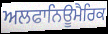
ਅਲਫਾਨਿਊਮੈਰਿਕ